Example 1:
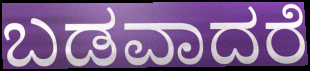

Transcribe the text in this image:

ಬಡವಾದರೆ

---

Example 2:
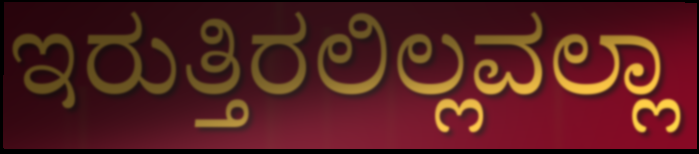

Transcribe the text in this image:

ಇರುತ್ತಿರಲಿಲ್ಲವಲ್ಲಾ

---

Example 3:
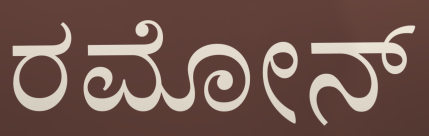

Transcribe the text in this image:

ರಮೋನ್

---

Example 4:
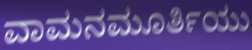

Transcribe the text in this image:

ವಾಮನಮೂರ್ತಿಯು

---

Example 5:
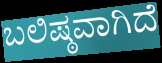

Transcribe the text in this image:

ಬಲಿಷ್ಠವಾಗಿದೆ